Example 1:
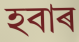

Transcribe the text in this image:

হবাৰ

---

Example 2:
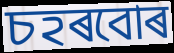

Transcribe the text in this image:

চহৰবোৰ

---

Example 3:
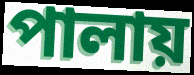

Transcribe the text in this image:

পালায়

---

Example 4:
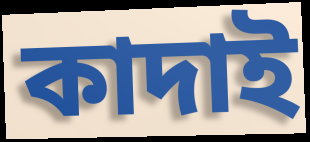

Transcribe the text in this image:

কাদাই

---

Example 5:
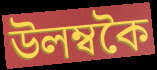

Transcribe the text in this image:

উলম্বকৈ